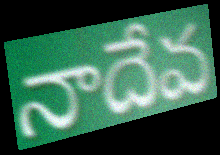
నాదేవ